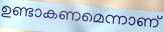
ഉണ്ടാകണമെന്നാണ്